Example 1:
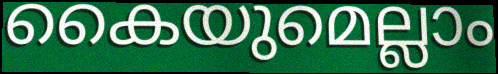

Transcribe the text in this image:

കൈയുമെല്ലാം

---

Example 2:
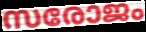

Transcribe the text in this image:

സരോജം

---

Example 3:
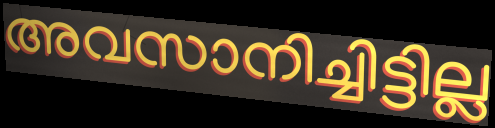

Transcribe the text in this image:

അവസാനിച്ചിട്ടില്ല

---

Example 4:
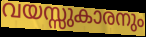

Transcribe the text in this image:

വയസ്സുകാരനും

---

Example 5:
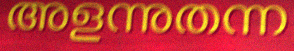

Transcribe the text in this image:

അളന്നുതന്ന